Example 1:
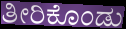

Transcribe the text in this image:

ತೀರಿಕೊಂಡು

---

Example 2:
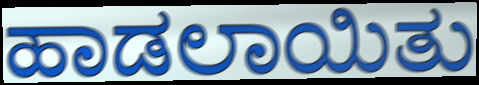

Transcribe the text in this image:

ಹಾಡಲಾಯಿತು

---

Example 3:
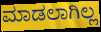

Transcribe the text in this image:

ಮಾಡಲಾಗಿಲ್ಲ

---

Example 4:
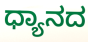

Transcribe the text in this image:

ಧ್ಯಾನದ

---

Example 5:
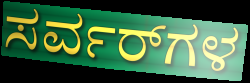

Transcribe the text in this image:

ಸರ್ವರ್‌ಗಳ